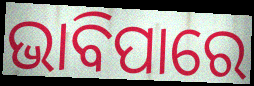
ଭାବିପାରେ